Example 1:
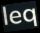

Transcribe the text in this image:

leq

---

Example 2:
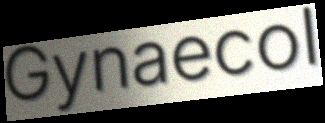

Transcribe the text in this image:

Gynaecol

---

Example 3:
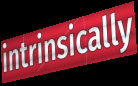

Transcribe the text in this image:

intrinsically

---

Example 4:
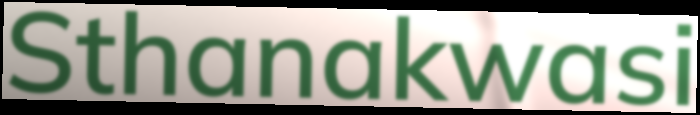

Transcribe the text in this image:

Sthanakwasi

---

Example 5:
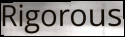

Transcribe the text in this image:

Rigorous